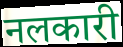
नलकारी